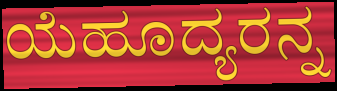
ಯೆಹೂದ್ಯರನ್ನ